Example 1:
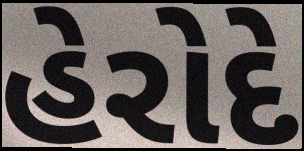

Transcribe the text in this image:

હેરોદે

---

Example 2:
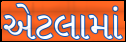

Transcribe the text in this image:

એટલામાં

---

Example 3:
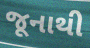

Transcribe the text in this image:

જૂનાથી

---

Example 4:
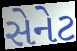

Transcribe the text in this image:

સેનેટ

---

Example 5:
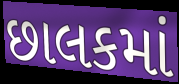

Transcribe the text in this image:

છાલકમાં